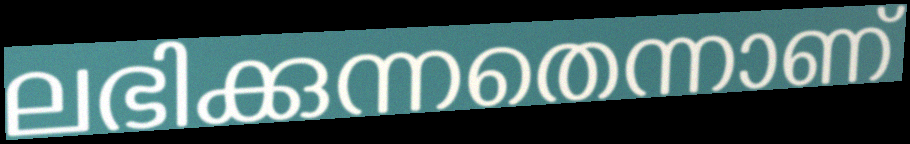
ലഭിക്കുന്നതെന്നാണ്